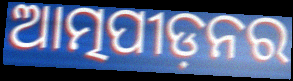
ଆତ୍ମପୀଡ଼ନର